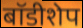
बॉडीशेप